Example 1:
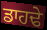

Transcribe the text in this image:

ਡਾਹਢੇ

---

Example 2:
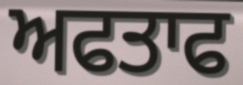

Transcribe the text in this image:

ਅਫਤਾਫ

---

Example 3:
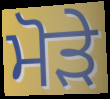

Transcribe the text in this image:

ਮੋੜੇ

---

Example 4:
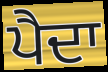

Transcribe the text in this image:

ਪੈਦਾ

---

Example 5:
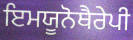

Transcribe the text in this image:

ਇਮਯੂਨੋਥੈਰੇਪੀ